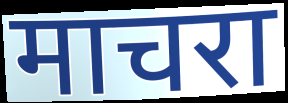
माचरा